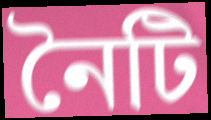
নৈটি